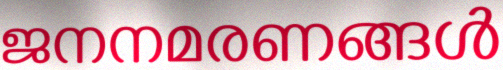
ജനനമരണങ്ങൾ